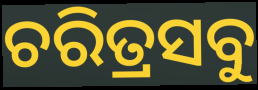
ଚରିତ୍ରସବୁ